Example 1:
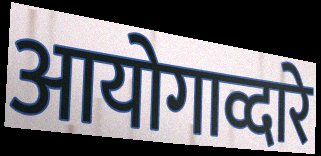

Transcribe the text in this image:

आयोगाव्दारे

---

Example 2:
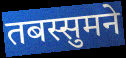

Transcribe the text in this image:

तबस्सुमने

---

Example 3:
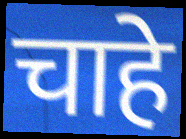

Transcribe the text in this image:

चाहे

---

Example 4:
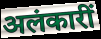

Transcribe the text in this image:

अलंकारीं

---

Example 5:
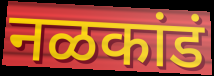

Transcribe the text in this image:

नळकांडं